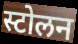
स्टोलन